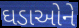
ઘડાઓને